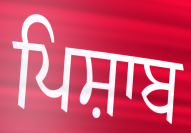
ਪਿਸ਼ਾਬ